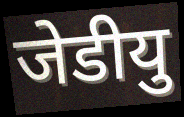
जेडीयु